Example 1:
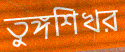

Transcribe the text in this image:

তুঙ্গশিখর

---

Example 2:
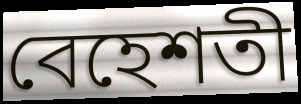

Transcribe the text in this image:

বেহেশতী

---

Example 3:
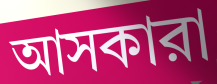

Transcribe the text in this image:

আসকারা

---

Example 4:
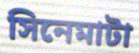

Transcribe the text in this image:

সিনেমাটা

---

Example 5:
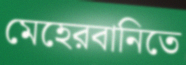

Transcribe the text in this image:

মেহেরবানিতে